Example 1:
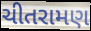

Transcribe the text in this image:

ચીતરામણ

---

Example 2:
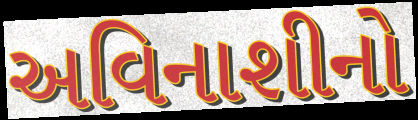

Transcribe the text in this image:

અવિનાશીનો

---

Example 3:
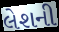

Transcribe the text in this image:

લેશની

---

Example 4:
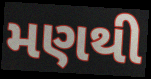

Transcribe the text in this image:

મણથી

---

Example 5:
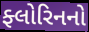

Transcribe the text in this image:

ફ્લોરિનનો